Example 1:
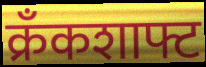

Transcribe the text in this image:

क्रँकशाफ्ट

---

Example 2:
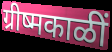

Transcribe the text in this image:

ग्रीष्मकाळीं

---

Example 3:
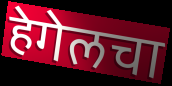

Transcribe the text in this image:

हेगेलचा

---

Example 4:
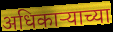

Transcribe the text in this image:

अधिकाऱ्याच्या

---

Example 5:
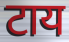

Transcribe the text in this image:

टाय